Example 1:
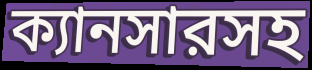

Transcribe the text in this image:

ক্যানসারসহ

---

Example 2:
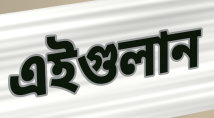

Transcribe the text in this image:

এইগুলান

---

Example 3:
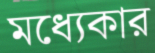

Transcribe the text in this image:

মধ্যেকার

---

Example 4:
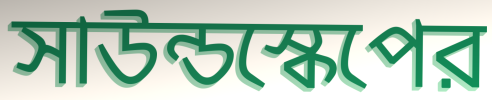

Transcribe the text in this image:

সাউন্ডস্কেপের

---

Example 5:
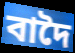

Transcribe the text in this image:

বাদৈ